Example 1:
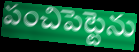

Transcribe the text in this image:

పంచిపెట్టెను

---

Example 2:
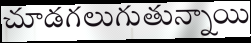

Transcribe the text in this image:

చూడగలుగుతున్నాయి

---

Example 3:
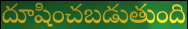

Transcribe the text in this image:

దూషించబడుతుంది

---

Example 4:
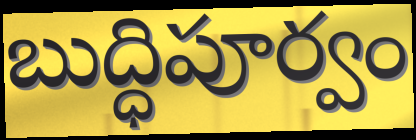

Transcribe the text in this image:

బుద్ధిపూర్వం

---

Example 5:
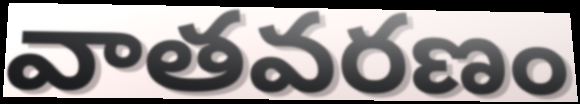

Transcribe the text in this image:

వాతవరణం